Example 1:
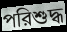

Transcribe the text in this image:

পরিশুদ্ধ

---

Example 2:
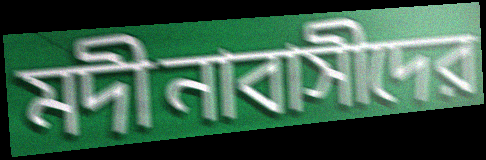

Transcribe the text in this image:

মদীনাবাসীদের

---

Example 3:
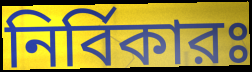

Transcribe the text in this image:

নির্বিকারঃ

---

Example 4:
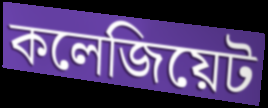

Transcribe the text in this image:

কলেজিয়েট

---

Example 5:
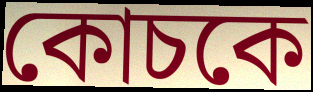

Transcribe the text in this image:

কোচকে